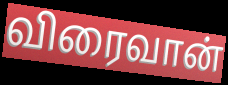
விரைவான்